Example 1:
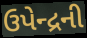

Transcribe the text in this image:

ઉપેન્દ્રની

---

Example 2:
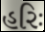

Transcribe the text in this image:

હરિઃ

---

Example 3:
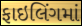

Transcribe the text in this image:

ફાઇલિંગમાં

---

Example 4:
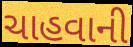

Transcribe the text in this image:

ચાહવાની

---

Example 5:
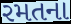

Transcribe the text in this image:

રમતના